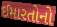
ઈમારતોનો